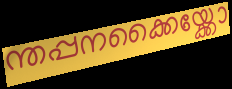
ന്തപ്പനക്കൈയ്ക്കോ